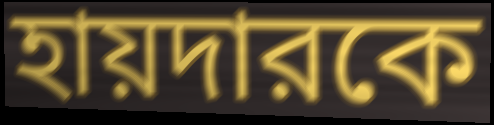
হায়দারকে